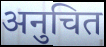
अनुचित